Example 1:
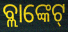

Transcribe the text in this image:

ବ୍ଲାଙ୍କେଟ୍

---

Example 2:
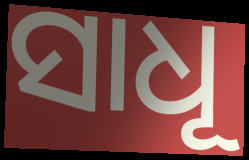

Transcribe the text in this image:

ସାଧୂ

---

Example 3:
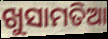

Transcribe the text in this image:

ଖୁସାମତିଆ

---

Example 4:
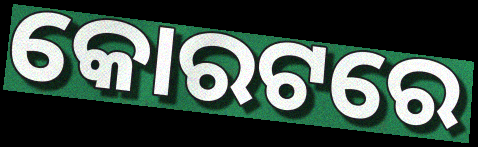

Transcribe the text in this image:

କୋରଟରେ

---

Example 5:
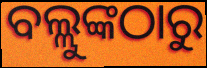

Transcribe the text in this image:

ବଲ୍ଲୁଙ୍କଠାରୁ